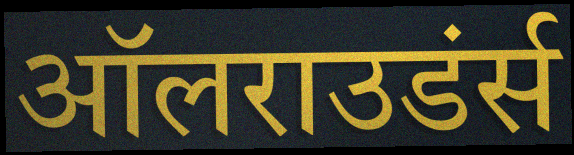
ऑलराउडंर्स